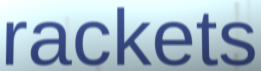
rackets